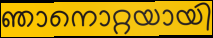
ഞാനൊറ്റയായി